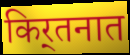
किर्तनात